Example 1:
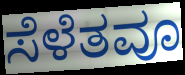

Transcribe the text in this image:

ಸೆಳೆತವೂ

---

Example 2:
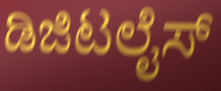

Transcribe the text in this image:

ಡಿಜಿಟಲೈಸ್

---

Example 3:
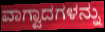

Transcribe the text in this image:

ವಾಗ್ವಾದಗಳನ್ನು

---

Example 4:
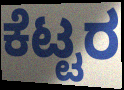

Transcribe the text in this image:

ಕೆಟ್ಟರ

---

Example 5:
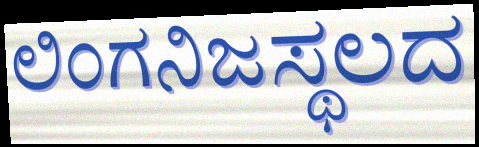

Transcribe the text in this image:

ಲಿಂಗನಿಜಸ್ಥಲದ